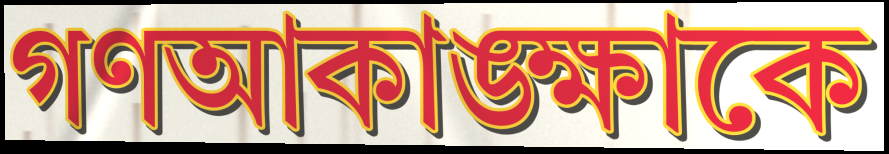
গণআকাঙ্ক্ষাকে